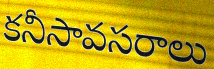
కనీసావసరాలు